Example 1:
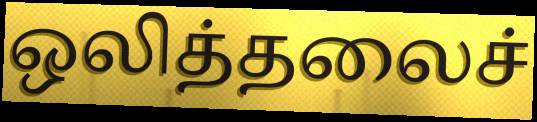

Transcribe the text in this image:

ஒலித்தலைச்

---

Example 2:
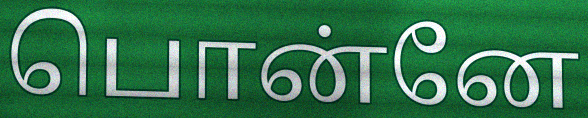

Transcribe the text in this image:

பொன்னே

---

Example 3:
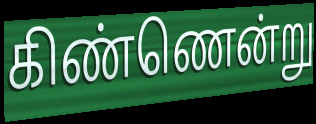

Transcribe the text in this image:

கிண்ணென்று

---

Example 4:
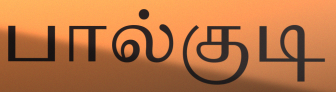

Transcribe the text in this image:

பால்குடி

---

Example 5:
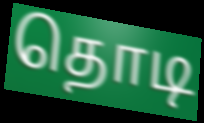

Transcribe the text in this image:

தொடி